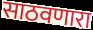
साठवणारा